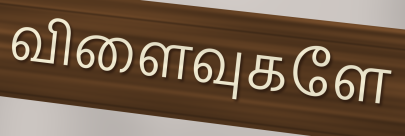
விளைவுகளே